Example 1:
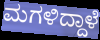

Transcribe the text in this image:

ಮಗಳಿದ್ದಾಳೆ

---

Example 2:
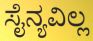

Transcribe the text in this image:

ಸೈನ್ಯವಿಲ್ಲ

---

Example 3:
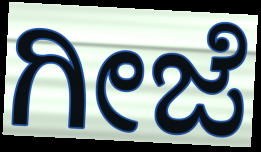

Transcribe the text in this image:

ಗೀಜೆ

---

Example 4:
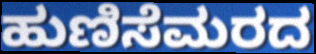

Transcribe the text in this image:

ಹುಣಿಸೆಮರದ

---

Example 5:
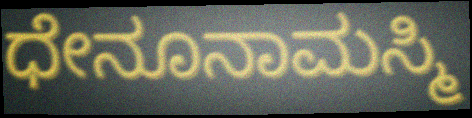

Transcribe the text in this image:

ಧೇನೂನಾಮಸ್ಮಿ